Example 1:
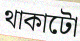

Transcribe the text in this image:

থাকাটো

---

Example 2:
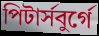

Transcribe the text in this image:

পিটাৰ্সবুৰ্গে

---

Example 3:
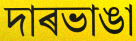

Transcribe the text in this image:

দাৰভাঙা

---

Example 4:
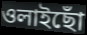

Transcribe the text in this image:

ওলাইছোঁ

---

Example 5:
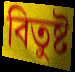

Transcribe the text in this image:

বিতুষ্ট